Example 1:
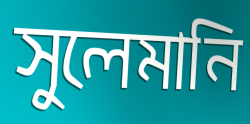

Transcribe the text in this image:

সুলেমানি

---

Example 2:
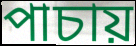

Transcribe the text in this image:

পাচায়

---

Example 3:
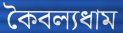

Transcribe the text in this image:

কৈবল্যধাম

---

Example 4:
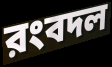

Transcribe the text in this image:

রংবদল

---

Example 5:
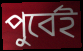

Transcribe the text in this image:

পুর্বেই